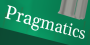
Pragmatics